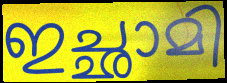
ഇച്ഛാമി